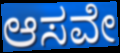
ಆಸವೇ